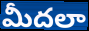
మీదలా